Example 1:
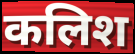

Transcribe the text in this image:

कलिश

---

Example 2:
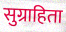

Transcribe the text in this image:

सुग्राहिता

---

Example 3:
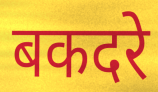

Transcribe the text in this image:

बकदरे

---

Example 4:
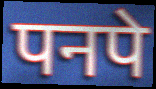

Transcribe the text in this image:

पनपे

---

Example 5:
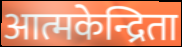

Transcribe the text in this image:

आत्मकेन्द्रिता